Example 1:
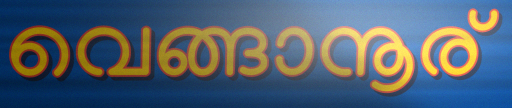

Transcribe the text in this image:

വെങ്ങാനൂര്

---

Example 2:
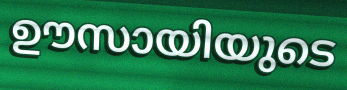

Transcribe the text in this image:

ഊസായിയുടെ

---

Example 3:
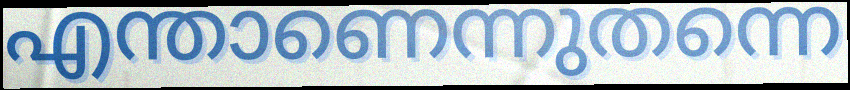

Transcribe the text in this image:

എന്താണെന്നുതന്നെ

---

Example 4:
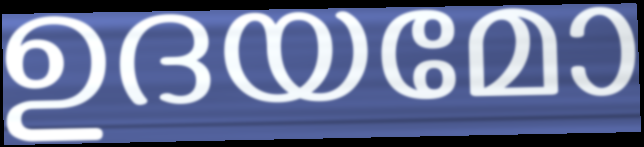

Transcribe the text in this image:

ഉദയമോ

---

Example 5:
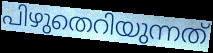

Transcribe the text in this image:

പിഴുതെറിയുന്നത്